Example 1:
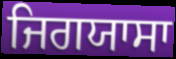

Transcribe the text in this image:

ਜਿਗਯਾਸਾ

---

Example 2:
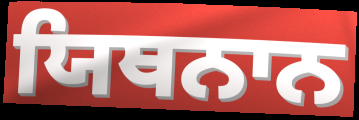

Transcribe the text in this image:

ਯਿਥਨਾਨ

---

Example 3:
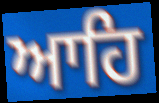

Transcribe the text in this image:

ਆਹਿ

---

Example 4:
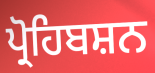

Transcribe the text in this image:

ਪ੍ਰੋਹਿਬਸ਼ਨ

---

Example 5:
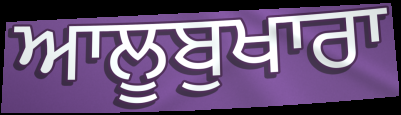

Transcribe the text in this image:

ਆਲੂਬੁਖਾਰਾ